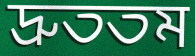
দ্রুততম